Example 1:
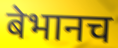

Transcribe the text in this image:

बेभानच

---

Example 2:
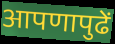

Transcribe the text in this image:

आपणापुढें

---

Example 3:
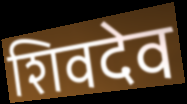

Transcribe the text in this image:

शिवदेव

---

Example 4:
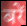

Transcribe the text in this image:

बरें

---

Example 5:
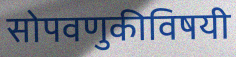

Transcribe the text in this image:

सोपवणुकीविषयी